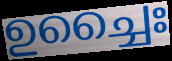
ഉച്ചൈഃ